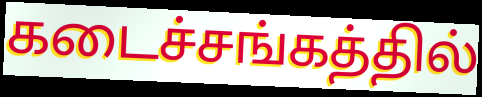
கடைச்சங்கத்தில்